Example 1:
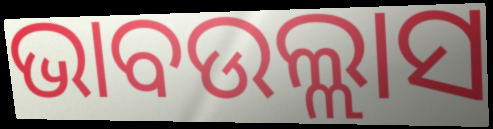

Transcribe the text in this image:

ଭାବଉଲ୍ଲାସ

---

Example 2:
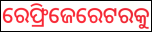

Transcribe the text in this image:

ରେଫ୍ରିଜେରେଟରକୁ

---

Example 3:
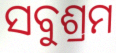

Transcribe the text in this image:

ସବୁଶ୍ରମ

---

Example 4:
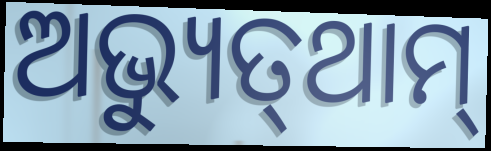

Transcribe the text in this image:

ଅଭ୍ୟୁତ୍‌ଥାମ୍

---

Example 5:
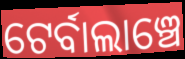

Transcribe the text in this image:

ଟେର୍ବାଲାଞ୍ଚେ